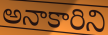
అనాకారిని